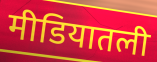
मीडियातली